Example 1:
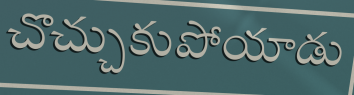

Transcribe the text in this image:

చొచ్చుకుపోయాడు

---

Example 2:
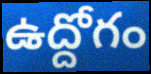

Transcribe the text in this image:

ఉద్దోగం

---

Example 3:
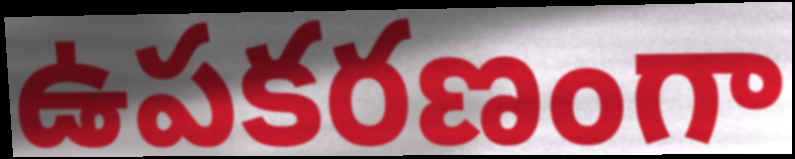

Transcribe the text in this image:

ఉపకరణంగా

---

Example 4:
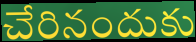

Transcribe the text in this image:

చేరినందుకు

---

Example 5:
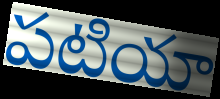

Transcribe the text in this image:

పటియా